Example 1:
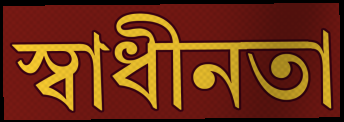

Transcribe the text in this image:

স্বাধীনতা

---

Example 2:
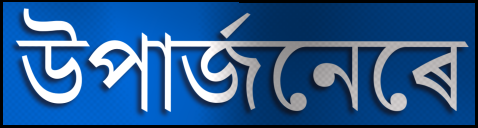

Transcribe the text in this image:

উপাৰ্জনেৰে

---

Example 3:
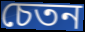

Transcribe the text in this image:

চেতন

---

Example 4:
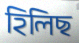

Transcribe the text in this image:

হিলিছ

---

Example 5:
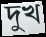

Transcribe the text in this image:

দুখ